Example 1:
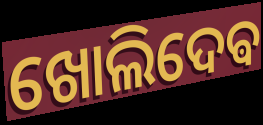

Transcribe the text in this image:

ଖୋଲିଦେଵ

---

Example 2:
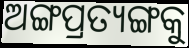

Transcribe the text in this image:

ଅଙ୍ଗପ୍ରତ୍ୟଙ୍ଗକୁ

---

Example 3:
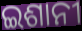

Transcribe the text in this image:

ଇଶାନୀ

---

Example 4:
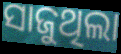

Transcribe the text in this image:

ସାଜୁଥିଲା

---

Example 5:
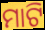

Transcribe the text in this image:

ମାଟି